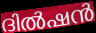
ദിൽഷൻ